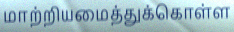
மாற்றியமைத்துக்கொள்ள